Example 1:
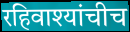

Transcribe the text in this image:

रहिवाश्यांचीच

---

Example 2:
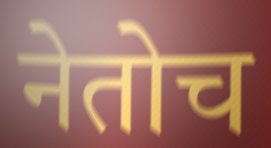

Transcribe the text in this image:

नेतोच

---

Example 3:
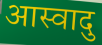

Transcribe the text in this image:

आस्वादु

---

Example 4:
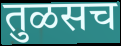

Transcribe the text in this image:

तुळसच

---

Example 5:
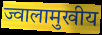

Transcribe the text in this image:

ज्वालामुखीय